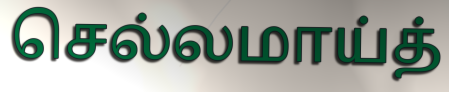
செல்லமாய்த்